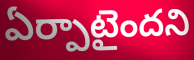
ఏర్పాటైందని